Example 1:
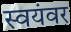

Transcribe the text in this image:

स्वयंवर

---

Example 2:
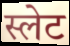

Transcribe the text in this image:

स्लेट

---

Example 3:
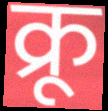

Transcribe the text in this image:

क्रू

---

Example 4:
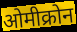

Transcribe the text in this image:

ओमीक्रोन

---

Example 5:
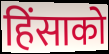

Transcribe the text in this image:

हिंसाको